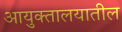
आयुक्तालयातील